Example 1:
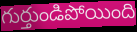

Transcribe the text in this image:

గుర్తుండిపోయింది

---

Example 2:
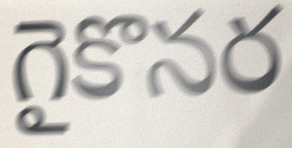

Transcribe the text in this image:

గైకొనర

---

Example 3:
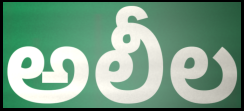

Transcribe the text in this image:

అలీల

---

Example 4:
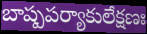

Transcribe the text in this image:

బాష్పపర్యాకులేక్షణః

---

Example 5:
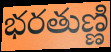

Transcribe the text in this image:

భరతుణ్ణి